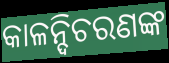
କାଳନ୍ଦିଚରଣଙ୍କ